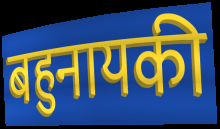
बहुनायकी